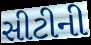
સીટીની